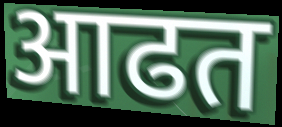
आढत